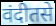
वंदीतसे